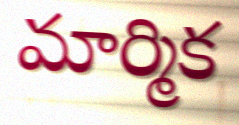
మార్మిక